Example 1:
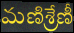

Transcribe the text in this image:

మణిశ్రేణీ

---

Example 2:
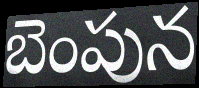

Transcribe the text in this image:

బెంపున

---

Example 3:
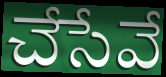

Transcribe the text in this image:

చేసేవే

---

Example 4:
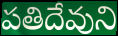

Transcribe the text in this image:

పతిదేవుని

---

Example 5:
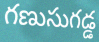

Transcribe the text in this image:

గణుసుగడ్డ